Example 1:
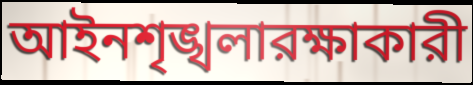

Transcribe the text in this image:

আইনশৃঙ্খলারক্ষাকারী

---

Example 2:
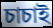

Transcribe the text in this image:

চাচাই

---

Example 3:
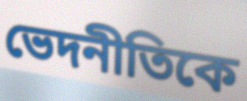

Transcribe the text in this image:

ভেদনীতিকে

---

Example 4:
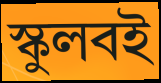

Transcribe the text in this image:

স্কুলবই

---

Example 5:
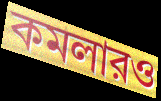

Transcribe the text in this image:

কমলারও